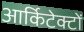
आर्किटेक्टों